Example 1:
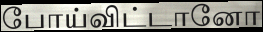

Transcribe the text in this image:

போய்விட்டானோ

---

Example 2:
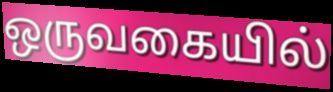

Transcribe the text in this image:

ஒருவகையில்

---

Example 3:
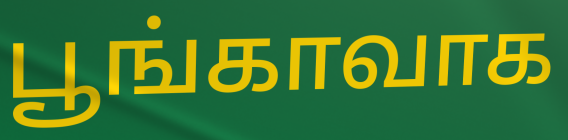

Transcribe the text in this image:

பூங்காவாக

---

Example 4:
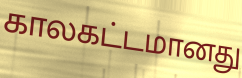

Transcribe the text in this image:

காலகட்டமானது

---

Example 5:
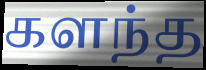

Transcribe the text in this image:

களந்த